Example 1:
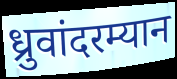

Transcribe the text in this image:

ध्रुवांदरम्यान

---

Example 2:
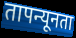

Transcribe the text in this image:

तापन्यूनता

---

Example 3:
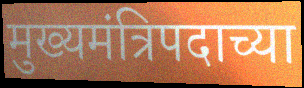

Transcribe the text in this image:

मुख्यमंत्रिपदाच्या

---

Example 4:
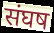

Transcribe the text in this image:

संघष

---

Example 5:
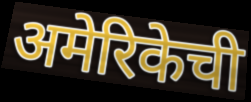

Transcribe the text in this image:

अमेरिकेची